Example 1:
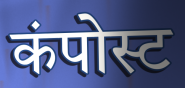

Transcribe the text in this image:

कंपोस्ट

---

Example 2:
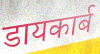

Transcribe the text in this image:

डायकार्ब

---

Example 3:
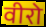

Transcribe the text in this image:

वीरो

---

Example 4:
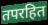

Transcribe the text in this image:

तपरहित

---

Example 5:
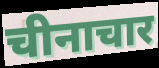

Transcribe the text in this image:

चीनाचार